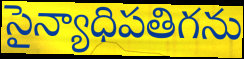
సైన్యాధిపతిగను